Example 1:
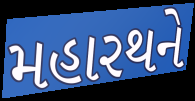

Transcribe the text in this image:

મહારથને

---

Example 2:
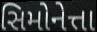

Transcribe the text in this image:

સિમોનેત્તા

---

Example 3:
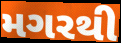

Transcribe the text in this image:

મગરથી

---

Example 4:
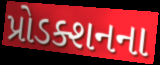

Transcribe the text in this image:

પ્રોડક્શનના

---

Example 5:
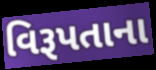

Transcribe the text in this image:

વિરૂપતાના